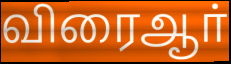
விரைஆர்